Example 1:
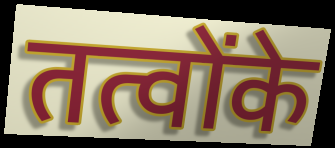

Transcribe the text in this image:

तत्वोंके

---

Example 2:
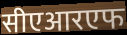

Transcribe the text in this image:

सीएआरएफ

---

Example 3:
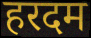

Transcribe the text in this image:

हरदम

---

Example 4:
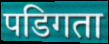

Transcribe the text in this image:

पडिगता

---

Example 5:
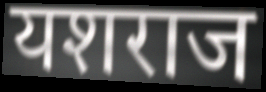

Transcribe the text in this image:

यशराज